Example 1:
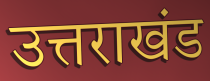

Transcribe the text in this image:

उत्तराखंड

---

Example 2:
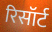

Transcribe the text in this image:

रिसॉर्ट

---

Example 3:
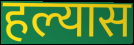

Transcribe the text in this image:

हल्यास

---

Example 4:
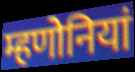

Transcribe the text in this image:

म्हणोनियां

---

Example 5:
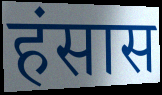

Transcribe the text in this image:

हंसास